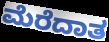
ಮೆರೆದಾತ